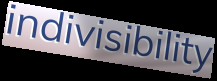
indivisibility